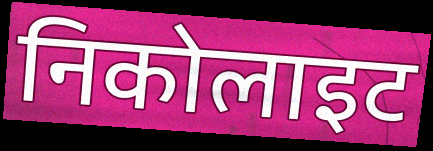
निकोलाइट